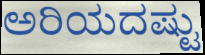
ಅರಿಯದಷ್ಟು